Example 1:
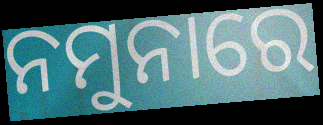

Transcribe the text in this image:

ନମୁନାରେ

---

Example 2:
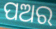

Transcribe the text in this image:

ପଅର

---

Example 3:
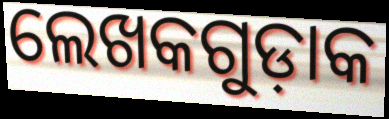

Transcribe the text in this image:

ଲେଖକଗୁଡ଼ାକ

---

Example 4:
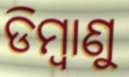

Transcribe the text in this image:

ଡିମ୍ବାଣୁ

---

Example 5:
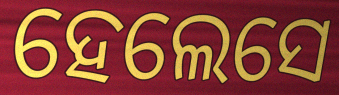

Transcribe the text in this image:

ହେଲେସେ